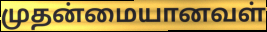
முதன்மையானவள்